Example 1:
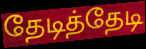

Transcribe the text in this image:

தேடித்தேடி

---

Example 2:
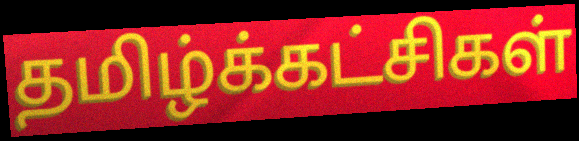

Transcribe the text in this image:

தமிழ்க்கட்சிகள்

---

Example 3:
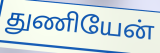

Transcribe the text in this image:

துணியேன்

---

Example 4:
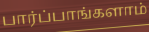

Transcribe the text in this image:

பார்ப்பாங்களாம்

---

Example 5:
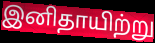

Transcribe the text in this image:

இனிதாயிற்று